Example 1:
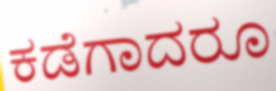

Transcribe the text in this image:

ಕಡೆಗಾದರೂ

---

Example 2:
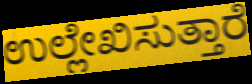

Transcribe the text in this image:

ಉಲ್ಲೇಖಿಸುತ್ತಾರೆ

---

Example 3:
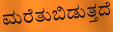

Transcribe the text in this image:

ಮರೆತುಬಿಡುತ್ತದೆ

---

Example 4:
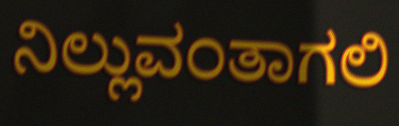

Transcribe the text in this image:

ನಿಲ್ಲುವಂತಾಗಲಿ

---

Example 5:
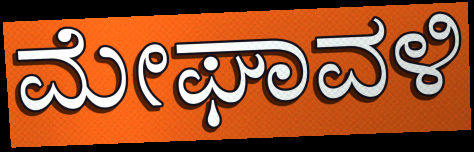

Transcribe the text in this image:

ಮೇಘಾವಳಿ